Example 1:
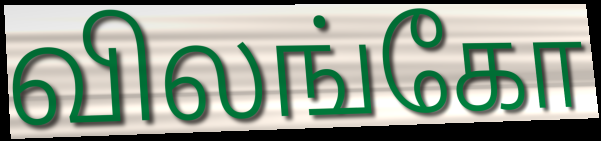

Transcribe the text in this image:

விலங்கோ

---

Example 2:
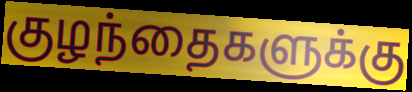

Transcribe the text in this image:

குழந்தைகளுக்கு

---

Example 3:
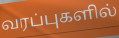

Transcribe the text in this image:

வரப்புகளில்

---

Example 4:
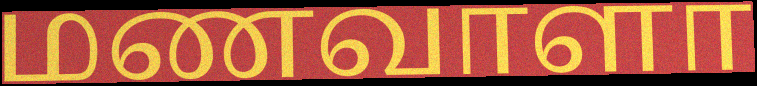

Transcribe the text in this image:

மணவாளா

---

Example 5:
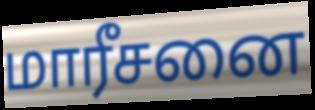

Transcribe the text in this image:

மாரீசனை